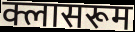
क्लासरूम